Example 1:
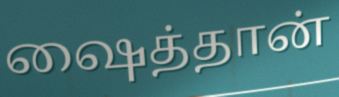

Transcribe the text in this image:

ஷைத்தான்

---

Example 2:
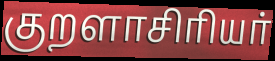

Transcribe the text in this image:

குறளாசிரியர்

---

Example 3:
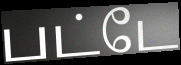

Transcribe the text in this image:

பட்டே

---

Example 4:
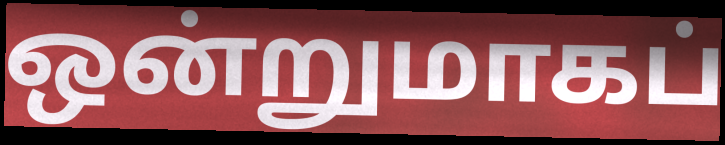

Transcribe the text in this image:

ஒன்றுமாகப்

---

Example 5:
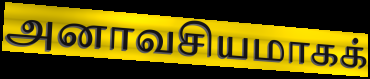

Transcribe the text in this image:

அனாவசியமாகக்